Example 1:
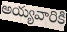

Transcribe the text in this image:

అయ్యవారికి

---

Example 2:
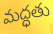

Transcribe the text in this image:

మద్ధతు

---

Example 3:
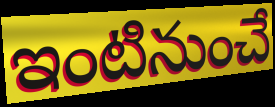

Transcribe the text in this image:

ఇంటినుంచే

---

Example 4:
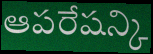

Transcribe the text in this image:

ఆపరేషన్కి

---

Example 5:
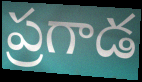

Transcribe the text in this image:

ప్రగాడ